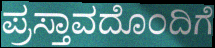
ಪ್ರಸ್ತಾವದೊಂದಿಗೆ